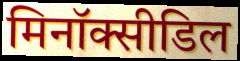
मिनॉक्सीडिल